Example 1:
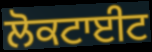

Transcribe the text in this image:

ਲੋਕਟਾਈਟ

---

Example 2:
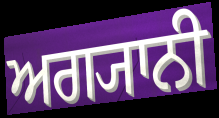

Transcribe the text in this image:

ਅਗ੍ਯਾਨੀ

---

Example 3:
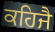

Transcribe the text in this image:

ਕਹਿਜੈ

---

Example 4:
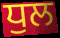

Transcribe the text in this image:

ਧੁਲ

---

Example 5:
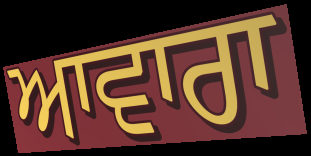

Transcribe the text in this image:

ਆਵਾਰਾ